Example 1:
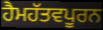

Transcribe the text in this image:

ਹੈਮਹੱਤਵਪੂਰਨ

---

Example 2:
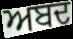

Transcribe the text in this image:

ਅਬਦ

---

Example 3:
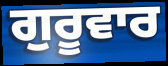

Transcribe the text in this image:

ਗੁਰੂਵਾਰ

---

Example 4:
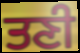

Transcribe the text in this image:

ਤਣੀ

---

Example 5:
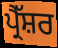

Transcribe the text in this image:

ਪ੍ਰੈੱਸ਼ਰ